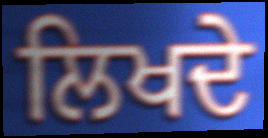
ਲਿਖਦੇ